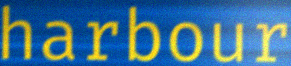
harbour